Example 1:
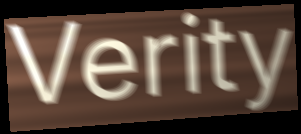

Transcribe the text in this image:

Verity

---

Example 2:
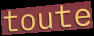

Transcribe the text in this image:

toute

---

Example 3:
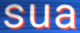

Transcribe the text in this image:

sua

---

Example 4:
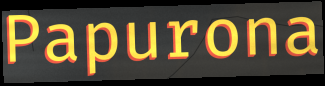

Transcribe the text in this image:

Papurona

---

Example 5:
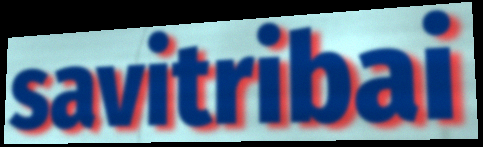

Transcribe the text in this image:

savitribai